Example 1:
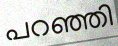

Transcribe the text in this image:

പറഞ്ഞി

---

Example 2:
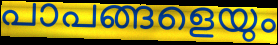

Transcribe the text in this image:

പാപങ്ങളെയും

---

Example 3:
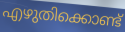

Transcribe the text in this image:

എഴുതിക്കൊണ്ട്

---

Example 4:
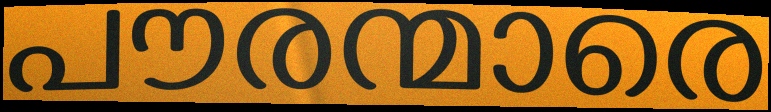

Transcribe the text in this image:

പൗരന്മാരെ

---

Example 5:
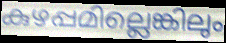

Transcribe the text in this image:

കുഴപ്പമില്ലെങ്കിലും